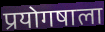
प्रयोगषाला